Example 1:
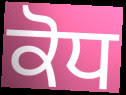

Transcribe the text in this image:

ਕੋਧ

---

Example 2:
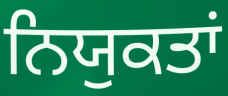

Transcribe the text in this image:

ਨਿਯੁਕਤਾਂ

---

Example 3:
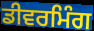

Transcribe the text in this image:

ਡੀਵਰਮਿੰਗ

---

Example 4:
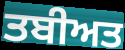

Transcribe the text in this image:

ਤਬੀਅਤ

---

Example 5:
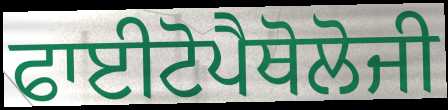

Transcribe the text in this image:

ਫਾਈਟੋਪੈਥੋਲੋਜੀ